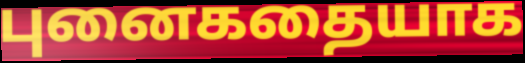
புனைகதையாக